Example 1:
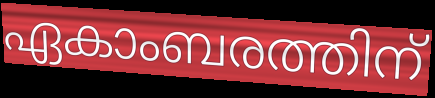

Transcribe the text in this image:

ഏകാംബരത്തിന്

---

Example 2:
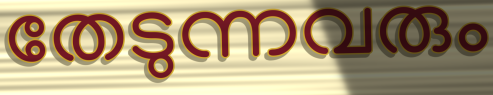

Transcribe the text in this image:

തേടുന്നവരും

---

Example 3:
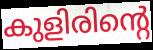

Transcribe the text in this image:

കുളിരിന്റെ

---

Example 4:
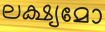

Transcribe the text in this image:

ലക്ഷ്യമോ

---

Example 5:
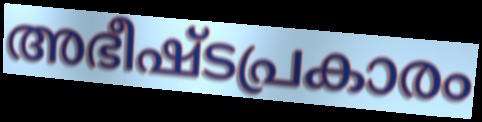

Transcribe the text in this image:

അഭീഷ്ടപ്രകാരം